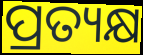
ପ୍ରତ୍ୟକ୍ଷ